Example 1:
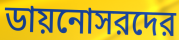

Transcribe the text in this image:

ডায়নোসরদের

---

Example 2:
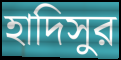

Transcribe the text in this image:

হাদিসুর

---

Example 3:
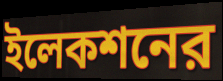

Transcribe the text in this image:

ইলেকশনের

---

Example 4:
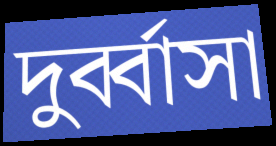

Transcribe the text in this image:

দুর্ব্বাসা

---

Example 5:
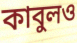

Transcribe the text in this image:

কাবুলও